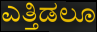
ಎತ್ತಿಡಲೂ